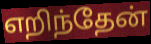
எறிந்தேன்